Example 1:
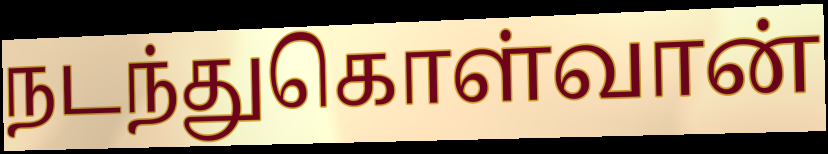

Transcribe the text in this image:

நடந்துகொள்வான்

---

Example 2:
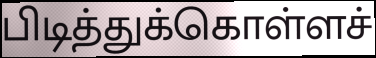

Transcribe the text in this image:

பிடித்துக்கொள்ளச்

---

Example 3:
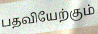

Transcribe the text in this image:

பதவியேற்கும்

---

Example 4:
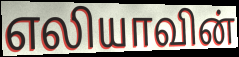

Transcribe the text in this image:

எலியாவின்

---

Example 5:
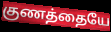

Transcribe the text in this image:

குணத்தையே